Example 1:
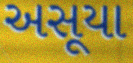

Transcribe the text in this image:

અસૂયા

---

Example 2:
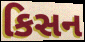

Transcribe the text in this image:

કિસન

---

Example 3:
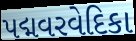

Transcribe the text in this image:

પદ્મવરવેદિકા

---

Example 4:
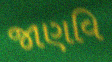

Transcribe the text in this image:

જાણવિ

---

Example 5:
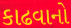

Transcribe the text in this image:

કાઢવાનો